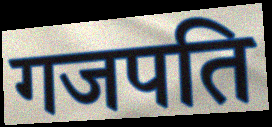
गजपति